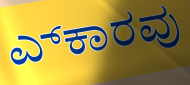
ಎ್‍ಕಾರವು